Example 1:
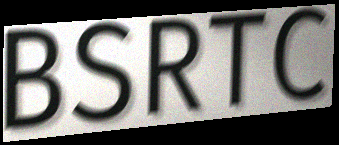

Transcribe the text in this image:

BSRTC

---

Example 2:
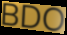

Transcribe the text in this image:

BDO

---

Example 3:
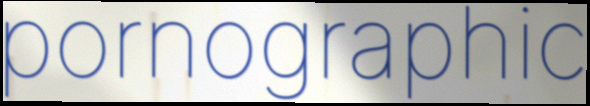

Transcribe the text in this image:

pornographic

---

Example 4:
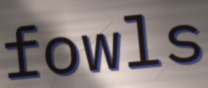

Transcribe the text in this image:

fowls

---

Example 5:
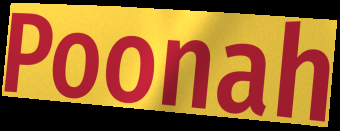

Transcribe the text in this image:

Poonah